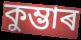
কুম্ভাৰ